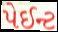
પેઈન્ટ